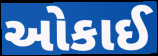
ઓકાઈ